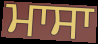
ਮਾਸਾ